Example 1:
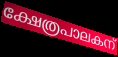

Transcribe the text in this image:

ക്ഷേത്രപാലകന്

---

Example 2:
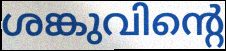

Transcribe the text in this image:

ശങ്കുവിന്റെ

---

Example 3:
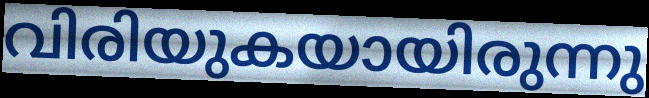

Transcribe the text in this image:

വിരിയുകയായിരുന്നു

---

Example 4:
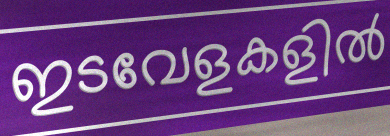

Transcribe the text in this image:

ഇടവേളകളിൽ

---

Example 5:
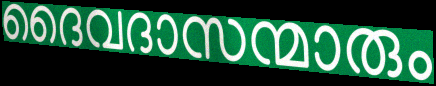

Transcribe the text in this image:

ദൈവദാസന്മാരും